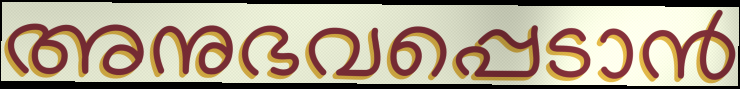
അനുഭവപ്പെടാൻ